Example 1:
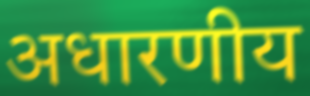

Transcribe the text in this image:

अधारणीय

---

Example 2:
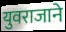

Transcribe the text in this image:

युवराजाने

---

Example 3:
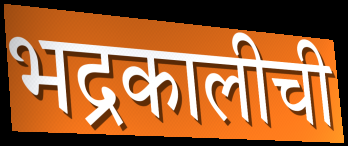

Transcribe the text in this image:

भद्रकालीची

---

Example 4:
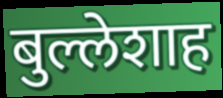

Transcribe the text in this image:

बुल्लेशाह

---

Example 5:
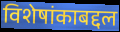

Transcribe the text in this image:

विशेषांकाबद्दल